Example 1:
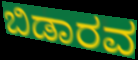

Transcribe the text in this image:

ಬಿಡಾರವ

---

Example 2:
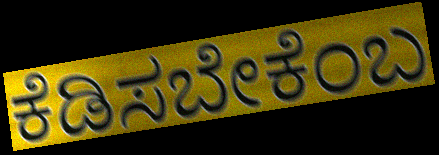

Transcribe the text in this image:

ಕೆಡಿಸಬೇಕೆಂಬ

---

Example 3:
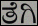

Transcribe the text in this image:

ತೆಗಿ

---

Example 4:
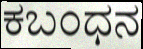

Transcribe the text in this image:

ಕಬಂಧನ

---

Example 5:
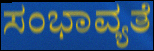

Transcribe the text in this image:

ಸಂಭಾವ್ಯತೆ